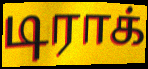
டிராக்